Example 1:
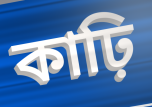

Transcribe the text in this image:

কাঢ়ি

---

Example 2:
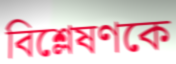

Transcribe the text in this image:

বিশ্লেষণকে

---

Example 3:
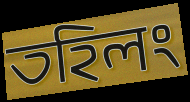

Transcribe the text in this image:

তহিলং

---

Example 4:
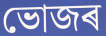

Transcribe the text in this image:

ভোজৰ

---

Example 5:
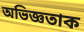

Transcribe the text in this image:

অভিজ্ঞতাক